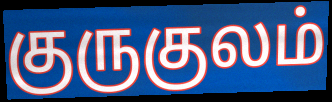
குருகுலம்